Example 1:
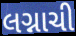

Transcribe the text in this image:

લગ્નાચી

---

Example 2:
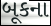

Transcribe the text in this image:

બૂકના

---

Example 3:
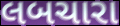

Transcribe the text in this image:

લબચારા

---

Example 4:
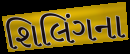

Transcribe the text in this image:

શિલિંગના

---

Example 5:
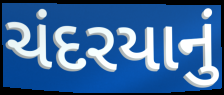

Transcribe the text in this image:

ચંદરયાનું